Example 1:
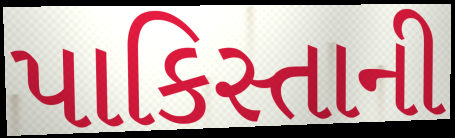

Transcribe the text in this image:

પાકિસ્તાની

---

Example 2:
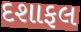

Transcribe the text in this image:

દશાફલ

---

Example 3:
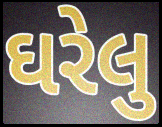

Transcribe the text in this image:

ઘરેલુ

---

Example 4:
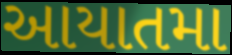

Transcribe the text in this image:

આયાતમા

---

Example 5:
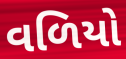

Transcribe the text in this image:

વળિયો